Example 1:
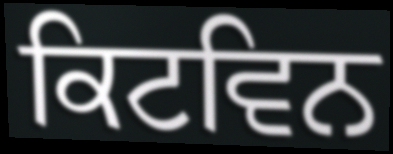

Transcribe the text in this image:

ਕਿਟਵਿਨ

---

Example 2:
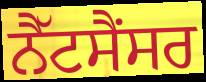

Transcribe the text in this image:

ਨੈੱਟਸੈਂਸਰ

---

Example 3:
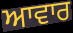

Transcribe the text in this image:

ਆਵਾਰ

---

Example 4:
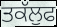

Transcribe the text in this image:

ਤਕੱਲੁਫ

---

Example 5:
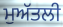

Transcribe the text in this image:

ਮੁਅੱਤਲੀ